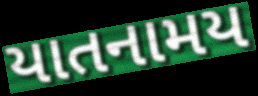
યાતનામય